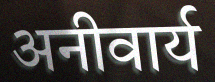
अनीवार्य